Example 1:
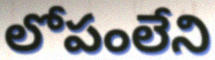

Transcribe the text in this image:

లోపంలేని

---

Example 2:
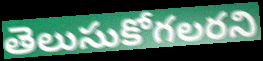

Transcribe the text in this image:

తెలుసుకోగలరని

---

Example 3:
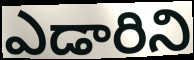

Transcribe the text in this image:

ఎడారిని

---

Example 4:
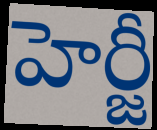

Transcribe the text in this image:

హెర్జీ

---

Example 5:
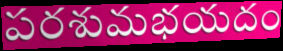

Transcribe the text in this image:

పరశుమభయదం